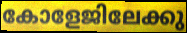
കോളേജിലേക്കു